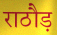
राठौड़